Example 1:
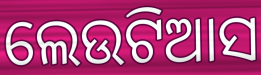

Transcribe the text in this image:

ଲେଉଟିଆସ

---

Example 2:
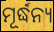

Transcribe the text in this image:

ମୂର୍ଦ୍ଧନ୍ୟ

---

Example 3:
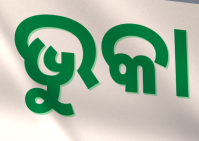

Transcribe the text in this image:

ଭୁକା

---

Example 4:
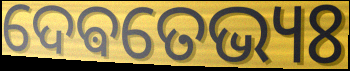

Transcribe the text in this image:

ଦେଵତେଭ୍ୟଃ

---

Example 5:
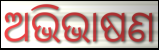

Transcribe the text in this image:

ଅଭିଭାଷଣ